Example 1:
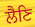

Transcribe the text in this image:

ਲੈਣਿ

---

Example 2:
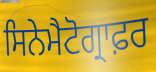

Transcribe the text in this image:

ਸਿਨੇਮੈਟੋਗ੍ਰਾਫ਼ਰ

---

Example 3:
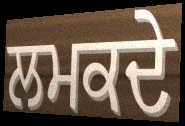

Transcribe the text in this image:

ਲਮਕਦੇ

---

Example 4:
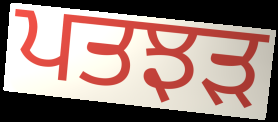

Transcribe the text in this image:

ਪਤਝਡ਼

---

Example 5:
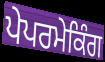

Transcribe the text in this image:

ਪੇਪਰਮੇਕਿੰਗ